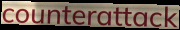
counterattack